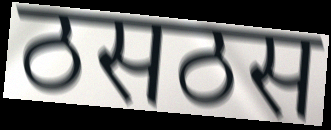
ठसठस